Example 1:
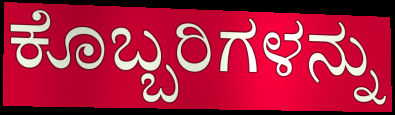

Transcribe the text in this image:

ಕೊಬ್ಬರಿಗಳನ್ನು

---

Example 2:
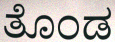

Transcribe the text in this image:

ತೊಂಡ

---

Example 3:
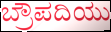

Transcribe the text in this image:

ಬ್ರೌಪದಿಯು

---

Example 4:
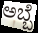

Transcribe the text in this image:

ಅಬ್ಬೆ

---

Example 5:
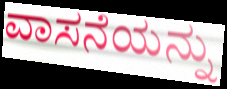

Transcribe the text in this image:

ವಾಸನೆಯನ್ನು